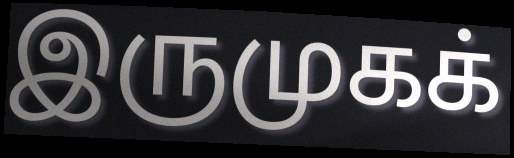
இருமுகக்